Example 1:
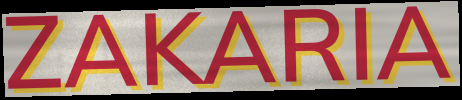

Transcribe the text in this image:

ZAKARIA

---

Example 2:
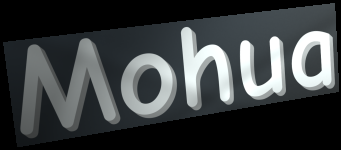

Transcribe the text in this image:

Mohua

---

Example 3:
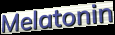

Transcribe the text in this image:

Melatonin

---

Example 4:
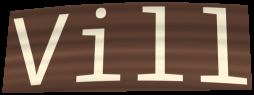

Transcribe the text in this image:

Vill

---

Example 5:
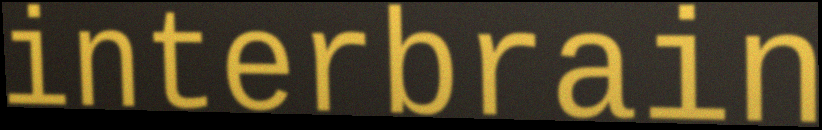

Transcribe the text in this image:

interbrain